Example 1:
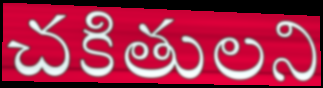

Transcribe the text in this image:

చకితులని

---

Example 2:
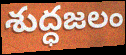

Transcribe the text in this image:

శుద్ధజలం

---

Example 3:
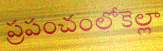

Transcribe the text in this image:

ప్రపంచంలోకెల్లా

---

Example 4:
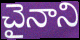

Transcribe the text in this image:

చైనాని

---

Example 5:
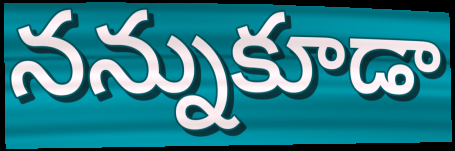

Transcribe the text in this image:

నన్నుకూడా